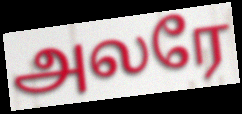
அலரே